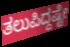
ತಲುಪಿದ್ದಷ್ಟೇ